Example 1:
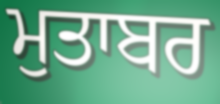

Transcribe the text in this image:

ਮੁਤਾਬਰ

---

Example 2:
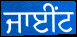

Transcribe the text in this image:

ਜਾਈਂਟ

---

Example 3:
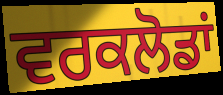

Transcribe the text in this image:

ਵਰਕਲੋਡਾਂ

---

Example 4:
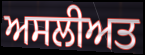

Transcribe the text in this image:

ਅਸਲੀਅਤ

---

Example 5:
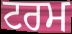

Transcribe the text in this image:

ਟਰਮ